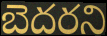
బెదరని